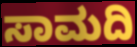
ಸಾಮದಿ